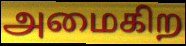
அமைகிற